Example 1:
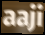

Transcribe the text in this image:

aaji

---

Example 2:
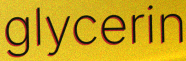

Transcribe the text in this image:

glycerin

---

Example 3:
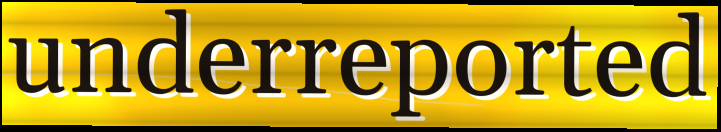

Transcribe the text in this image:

underreported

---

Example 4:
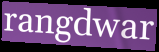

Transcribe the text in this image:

rangdwar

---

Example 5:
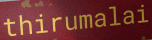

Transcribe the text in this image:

thirumalai